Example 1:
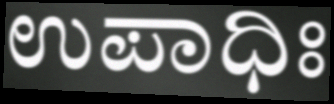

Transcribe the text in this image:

ಉಪಾಧಿಃ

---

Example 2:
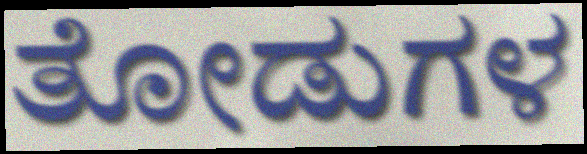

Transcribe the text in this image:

ತೋಡುಗಳ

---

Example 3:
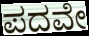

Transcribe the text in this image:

ಪದವೇ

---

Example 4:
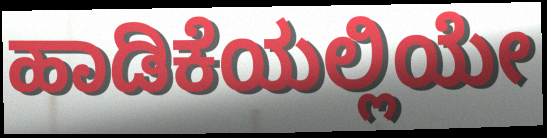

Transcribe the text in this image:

ಹಾಡಿಕೆಯಲ್ಲಿಯೇ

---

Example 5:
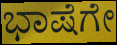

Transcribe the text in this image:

ಭಾಷೆಗೇ